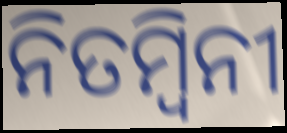
ନିତମ୍ବିନୀ